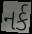
નર્ક